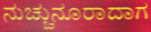
ನುಚ್ಚುನೂರಾದಾಗ